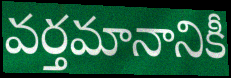
వర్తమానానికీ